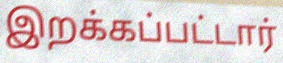
இறக்கப்பட்டார்